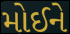
મોઈને